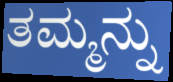
ತಮ್ಮನ್ನು